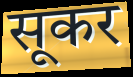
सूकर